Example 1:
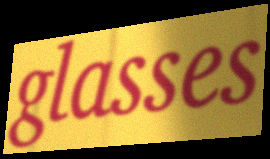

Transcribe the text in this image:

glasses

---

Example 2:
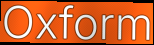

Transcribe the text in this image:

Oxform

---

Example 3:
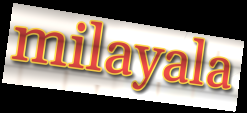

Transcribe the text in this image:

milayala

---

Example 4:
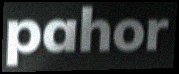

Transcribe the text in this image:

pahor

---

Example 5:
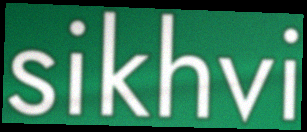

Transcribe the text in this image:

sikhvi